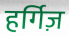
हर्गिज़